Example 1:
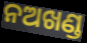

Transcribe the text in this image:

ନଅଖଣ୍ଡ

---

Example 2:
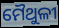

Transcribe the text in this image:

ମୈଥୁଳୀ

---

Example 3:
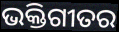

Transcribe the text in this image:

ଭକ୍ତିଗୀତର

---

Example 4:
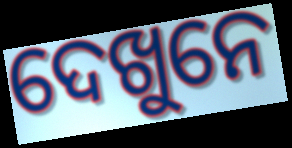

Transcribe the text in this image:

ଦେଖୁନେ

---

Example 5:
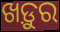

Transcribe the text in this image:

ଖଡ଼ୁର